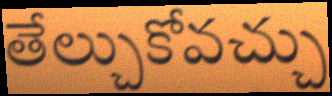
తేల్చుకోవచ్చు